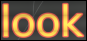
look